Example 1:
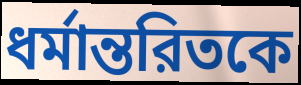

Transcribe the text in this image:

ধর্মান্তরিতকে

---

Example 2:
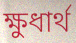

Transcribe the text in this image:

ক্ষুধার্থ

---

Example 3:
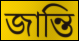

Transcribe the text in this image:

জান্তি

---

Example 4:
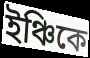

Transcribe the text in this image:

ইঞ্চিকে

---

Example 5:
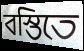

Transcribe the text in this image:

বস্তিতে